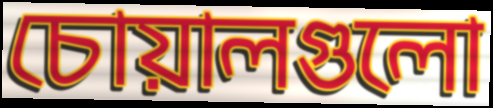
চোয়ালগুলো